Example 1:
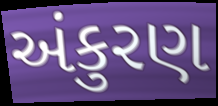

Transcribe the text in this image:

અંકુરણ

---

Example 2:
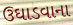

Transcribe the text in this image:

ઉઘાડવાના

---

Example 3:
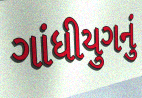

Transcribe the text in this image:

ગાંધીયુગનું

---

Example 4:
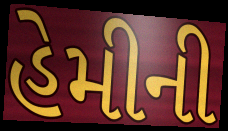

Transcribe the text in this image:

હેમીની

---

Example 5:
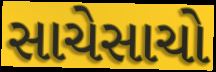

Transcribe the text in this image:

સાચેસાચો